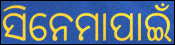
ସିନେମାପାଇଁ